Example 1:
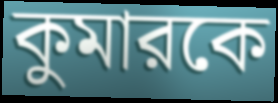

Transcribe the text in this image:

কুমারকে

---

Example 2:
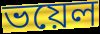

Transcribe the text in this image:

ভয়েল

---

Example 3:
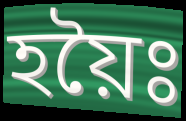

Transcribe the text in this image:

হয়ৈঃ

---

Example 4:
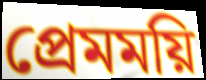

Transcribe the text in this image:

প্রেমময়ি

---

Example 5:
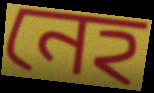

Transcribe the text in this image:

নেহ